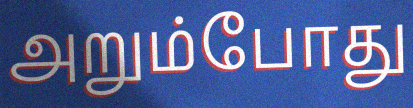
அறும்போது